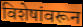
विशेषांवरून